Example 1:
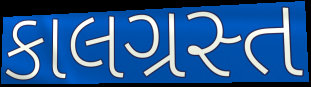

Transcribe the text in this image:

કાલગ્રસ્ત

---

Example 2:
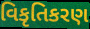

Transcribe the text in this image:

વિકૃતિકરણ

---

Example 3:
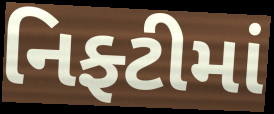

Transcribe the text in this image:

નિફ્ટીમાં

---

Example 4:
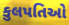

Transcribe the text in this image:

કુલપતિઓ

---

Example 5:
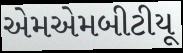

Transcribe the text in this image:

એમએમબીટીયૂ